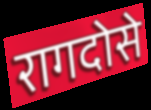
रागदोसे